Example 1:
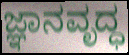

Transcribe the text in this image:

ಜ್ಞಾನವೃದ್ಧ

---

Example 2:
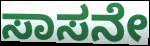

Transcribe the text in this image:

ಸಾಸನೇ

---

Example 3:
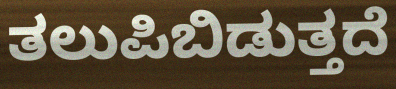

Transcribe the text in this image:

ತಲುಪಿಬಿಡುತ್ತದೆ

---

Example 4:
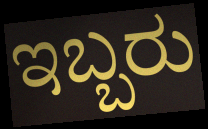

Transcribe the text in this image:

ಇಬ್ಬರು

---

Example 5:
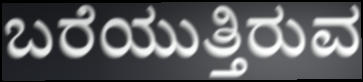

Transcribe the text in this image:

ಬರೆಯುತ್ತಿರುವ